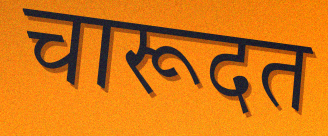
चारूदत